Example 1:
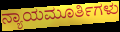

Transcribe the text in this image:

ನ್ಯಾಯಮೂರ್ತಿಗಳು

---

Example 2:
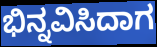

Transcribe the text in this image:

ಭಿನ್ನವಿಸಿದಾಗ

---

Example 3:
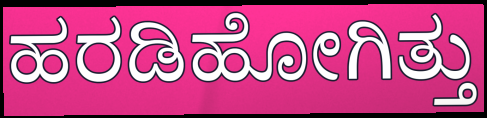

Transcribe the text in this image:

ಹರಡಿಹೋಗಿತ್ತು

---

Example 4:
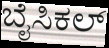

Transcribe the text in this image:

ಬೈಸಿಕಲ್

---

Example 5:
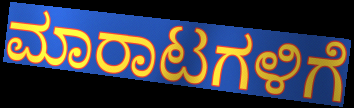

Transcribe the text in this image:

ಮಾರಾಟಗಳಿಗೆ